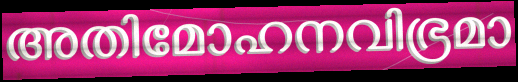
അതിമോഹനവിഭ്രമാ